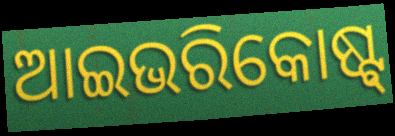
ଆଇଭରିକୋଷ୍ଟ୍